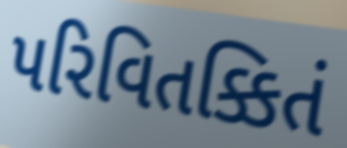
પરિવિતક્કિતં